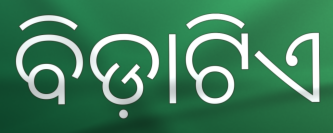
ବିଡ଼ାଟିଏ